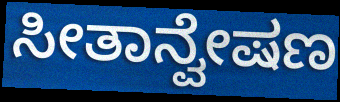
ಸೀತಾನ್ವೇಷಣ